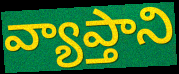
వ్యాప్తాని